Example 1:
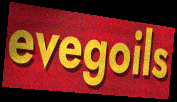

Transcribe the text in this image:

evegoils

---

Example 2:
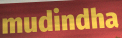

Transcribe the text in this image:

mudindha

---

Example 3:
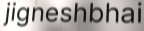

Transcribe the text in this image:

jigneshbhai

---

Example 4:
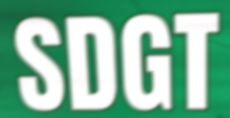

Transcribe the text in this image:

SDGT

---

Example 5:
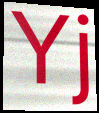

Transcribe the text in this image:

Yj